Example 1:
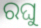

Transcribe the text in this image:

ରଘୁ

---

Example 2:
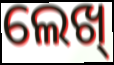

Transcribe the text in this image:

ଲେଖ୍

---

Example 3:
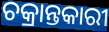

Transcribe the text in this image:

ଚକ୍ରାନ୍ତକାରୀ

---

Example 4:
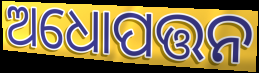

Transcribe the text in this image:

ଅଧୋପତ୍ତନ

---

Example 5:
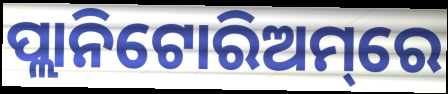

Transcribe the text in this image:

ପ୍ଲାନିଟୋରିଅମ୍‌ରେ